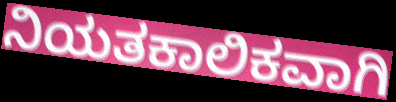
ನಿಯತಕಾಲಿಕವಾಗಿ